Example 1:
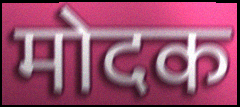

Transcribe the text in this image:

मोदक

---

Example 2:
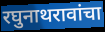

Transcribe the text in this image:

रघुनाथरावांचा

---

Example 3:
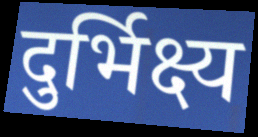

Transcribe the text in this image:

दुर्भिक्ष्य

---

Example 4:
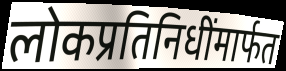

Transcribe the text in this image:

लोकप्रतिनिधींमार्फत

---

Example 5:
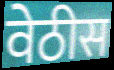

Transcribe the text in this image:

वेठीस